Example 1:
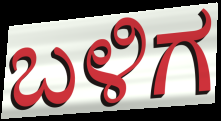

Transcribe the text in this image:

ಬಳಿಗ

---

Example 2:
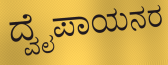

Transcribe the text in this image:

ದ್ವೈಪಾಯನರ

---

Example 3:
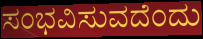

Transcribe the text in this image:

ಸಂಭವಿಸುವದೆಂದು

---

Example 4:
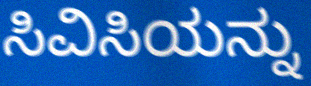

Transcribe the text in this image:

ಸಿವಿಸಿಯನ್ನು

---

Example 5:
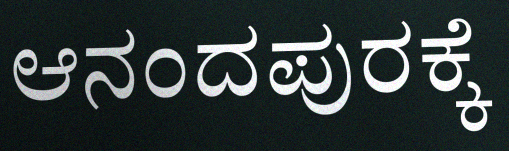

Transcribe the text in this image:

ಆನಂದಪುರಕ್ಕೆ